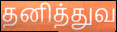
தனித்துவ